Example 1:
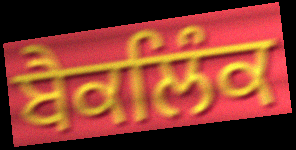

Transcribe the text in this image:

ਬੈਕਲਿੰਕ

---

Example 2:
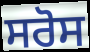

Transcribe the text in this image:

ਸਰੋਸ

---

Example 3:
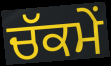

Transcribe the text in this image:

ਚੱਕਮੇਂ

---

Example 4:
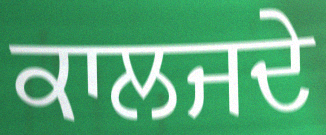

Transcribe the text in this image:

ਕਾਲਜਦੇ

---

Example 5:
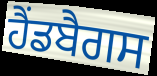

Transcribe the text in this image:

ਹੈਂਡਬੈਗਸ